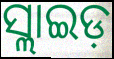
ସ୍ଲାଇଡ଼